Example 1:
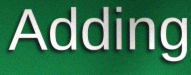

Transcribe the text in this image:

Adding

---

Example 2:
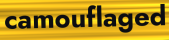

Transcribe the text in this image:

camouflaged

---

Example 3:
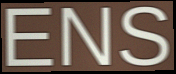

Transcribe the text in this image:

ENS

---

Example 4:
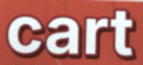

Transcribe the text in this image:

cart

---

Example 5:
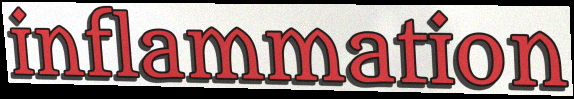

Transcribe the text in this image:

inflammation